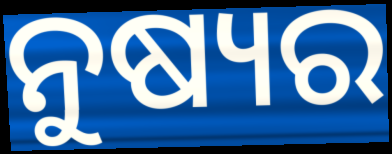
ନୁଷ୍ୟର